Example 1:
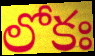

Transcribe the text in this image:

లోకః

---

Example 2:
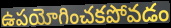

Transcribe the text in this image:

ఉపయోగించకపోవడం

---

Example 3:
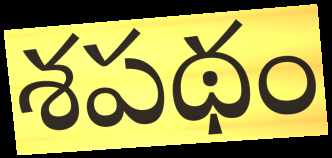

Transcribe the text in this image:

శపథం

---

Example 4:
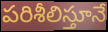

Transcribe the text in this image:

పరిశీలిస్తూనే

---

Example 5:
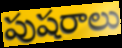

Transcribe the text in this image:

పుషరాలు